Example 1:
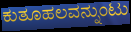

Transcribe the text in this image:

ಕುತೂಹಲವನ್ನುಂಟು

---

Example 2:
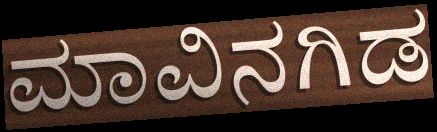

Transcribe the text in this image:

ಮಾವಿನಗಿಡ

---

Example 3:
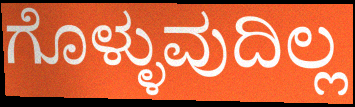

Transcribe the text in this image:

ಗೊಳ್ಳುವುದಿಲ್ಲ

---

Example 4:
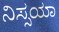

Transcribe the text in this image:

ನಿಸ್ಸಯಾ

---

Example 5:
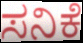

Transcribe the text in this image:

ಸನಿಕೆ